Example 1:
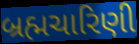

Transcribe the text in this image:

બ્રહ્મચારિણી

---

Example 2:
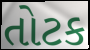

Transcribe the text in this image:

તોટક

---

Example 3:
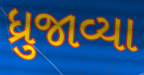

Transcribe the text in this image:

ધ્રુજાવ્યા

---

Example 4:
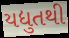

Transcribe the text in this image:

યદ્યુતથી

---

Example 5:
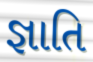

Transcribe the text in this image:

જ્ઞાતિ